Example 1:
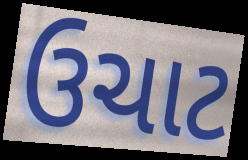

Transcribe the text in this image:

ઉચાટ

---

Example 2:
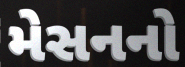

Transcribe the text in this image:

મેસનનો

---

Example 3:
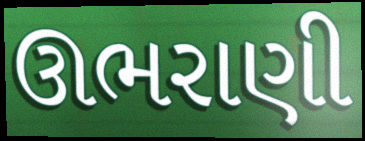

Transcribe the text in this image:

ઊભરાણી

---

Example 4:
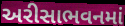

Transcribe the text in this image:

અરીસાભવનમાં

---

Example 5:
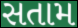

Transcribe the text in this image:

સતામ